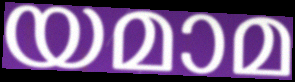
യമാമ